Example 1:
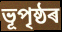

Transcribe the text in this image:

ভূপৃষ্ঠৰ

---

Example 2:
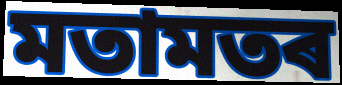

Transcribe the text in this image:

মতামতৰ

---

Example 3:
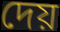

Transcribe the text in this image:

দেয়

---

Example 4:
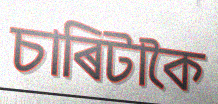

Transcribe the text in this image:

চাৰিটাকৈ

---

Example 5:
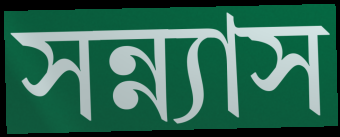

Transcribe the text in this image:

সন্ন্যাস